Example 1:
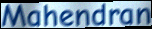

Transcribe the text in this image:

Mahendran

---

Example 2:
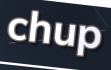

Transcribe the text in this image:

chup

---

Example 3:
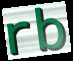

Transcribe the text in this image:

rb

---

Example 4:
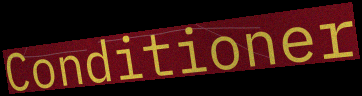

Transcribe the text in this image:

Conditioner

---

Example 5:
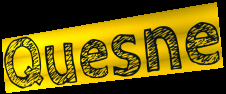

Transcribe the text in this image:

Quesne